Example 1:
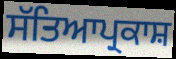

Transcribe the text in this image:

ਸੱਤਿਆਪ੍ਰਕਾਸ਼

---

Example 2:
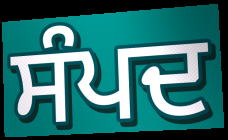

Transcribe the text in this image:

ਸੰਪਦ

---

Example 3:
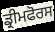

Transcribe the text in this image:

ਡ੍ਰੀਮਫੋਰਸ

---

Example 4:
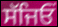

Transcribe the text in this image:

ਸੱਜਿਓਂ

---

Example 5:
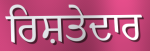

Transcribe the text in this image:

ਰਿਸ਼ਤੇਦਾਰ